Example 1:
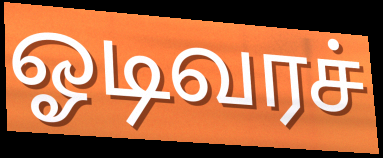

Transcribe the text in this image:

ஓடிவரச்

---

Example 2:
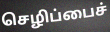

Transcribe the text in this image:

செழிப்பைச்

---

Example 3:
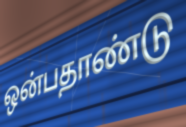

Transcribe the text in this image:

ஒன்பதாண்டு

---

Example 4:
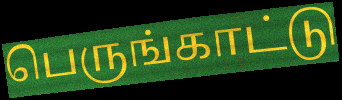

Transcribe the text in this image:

பெருங்காட்டு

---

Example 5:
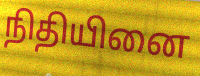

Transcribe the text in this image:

நிதியினை